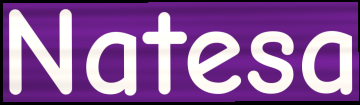
Natesa